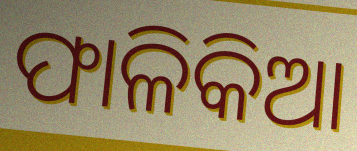
ଫାଳିକିଆ